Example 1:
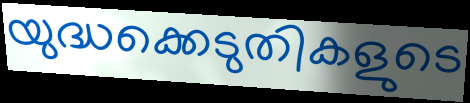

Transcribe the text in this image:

യുദ്ധക്കെടുതികളുടെ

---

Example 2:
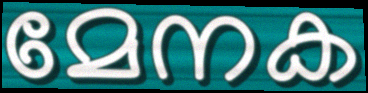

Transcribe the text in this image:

മേനക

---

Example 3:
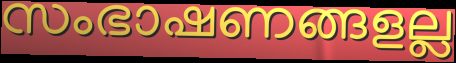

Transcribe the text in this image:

സംഭാഷണങ്ങളല്ല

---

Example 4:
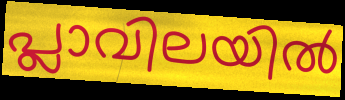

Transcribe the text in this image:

പ്ലാവിലയിൽ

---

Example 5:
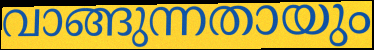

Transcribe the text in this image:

വാങ്ങുന്നതായും